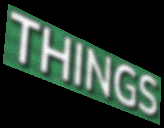
THINGS